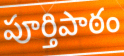
పూర్తిపాఠం